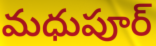
మధుపూర్